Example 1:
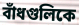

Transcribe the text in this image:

বাঁধগুলিকে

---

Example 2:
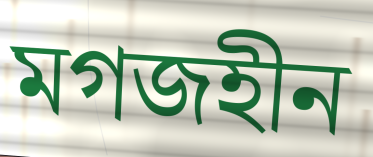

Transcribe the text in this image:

মগজহীন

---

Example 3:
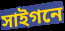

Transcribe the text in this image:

সাইগনে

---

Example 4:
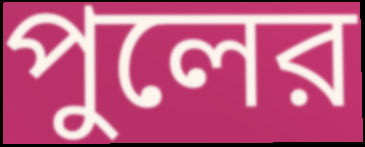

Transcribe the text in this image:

পুলের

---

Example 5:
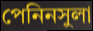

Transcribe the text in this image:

পেনিনসুলা